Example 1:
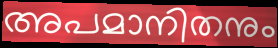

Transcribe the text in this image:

അപമാനിതനും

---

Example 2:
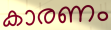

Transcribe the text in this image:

കാരണം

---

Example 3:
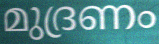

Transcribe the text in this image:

മുദ്രണം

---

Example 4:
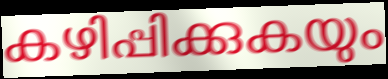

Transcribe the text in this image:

കഴിപ്പിക്കുകയും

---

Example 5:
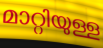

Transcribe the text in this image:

മാറ്റിയുള്ള